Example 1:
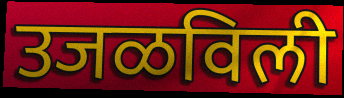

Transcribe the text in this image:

उजळविली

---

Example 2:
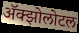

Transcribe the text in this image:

ॲक्झोलोटल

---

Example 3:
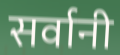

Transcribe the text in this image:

सर्वानी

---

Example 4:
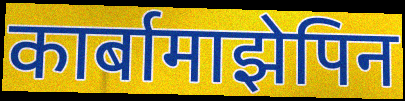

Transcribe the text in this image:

कार्बामाझेपिन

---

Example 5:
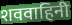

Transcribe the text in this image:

शववाहिनी